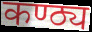
कण्ठ्य